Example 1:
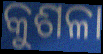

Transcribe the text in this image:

କୁଶଳା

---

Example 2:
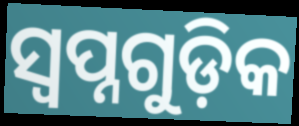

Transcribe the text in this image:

ସ୍ଵପ୍ନଗୁଡ଼ିକ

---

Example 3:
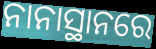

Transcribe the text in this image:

ନାନାସ୍ଥାନରେ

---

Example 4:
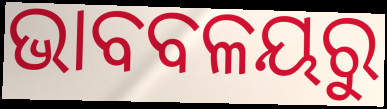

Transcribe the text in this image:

ଭାବବଳୟରୁ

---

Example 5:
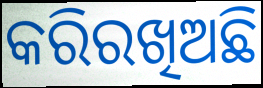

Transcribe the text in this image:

କରିରଖିଅଛି